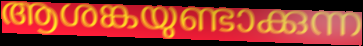
ആശങ്കയുണ്ടാക്കുന്ന